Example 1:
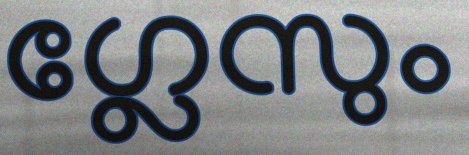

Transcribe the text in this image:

ഗ്ലേസും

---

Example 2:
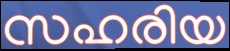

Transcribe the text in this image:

സഹരിയ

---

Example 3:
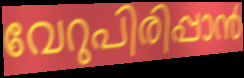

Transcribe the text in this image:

വേറുപിരിപ്പാൻ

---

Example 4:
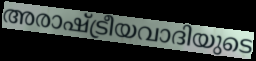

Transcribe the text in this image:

അരാഷ്ട്രീയവാദിയുടെ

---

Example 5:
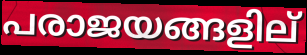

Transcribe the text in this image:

പരാജയങ്ങളില്